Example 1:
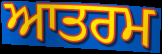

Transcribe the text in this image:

ਆਤਰਮ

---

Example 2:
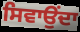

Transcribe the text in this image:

ਸਿਵਾਉਂਦਾ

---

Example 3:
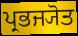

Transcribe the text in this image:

ਪ੍ਰਭਜ੍ਯੋਤ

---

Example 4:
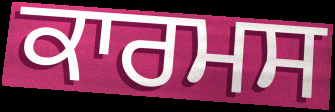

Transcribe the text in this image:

ਕਾਰਮਸ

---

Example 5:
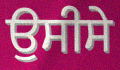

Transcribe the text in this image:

ਉਸੀਸੇ